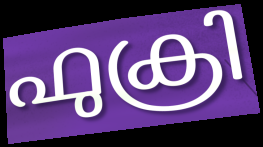
ഫുക്രി